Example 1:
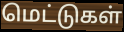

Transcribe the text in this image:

மெட்டுகள்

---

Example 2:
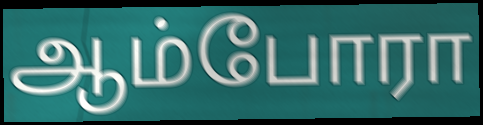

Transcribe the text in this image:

ஆம்போரா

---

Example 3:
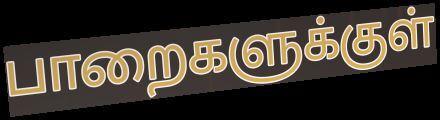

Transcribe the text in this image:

பாறைகளுக்குள்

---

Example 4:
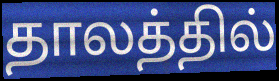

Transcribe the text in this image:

தாலத்தில்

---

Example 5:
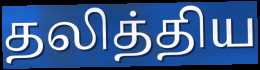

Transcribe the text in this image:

தலித்திய